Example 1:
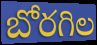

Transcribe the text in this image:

బోరగిల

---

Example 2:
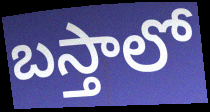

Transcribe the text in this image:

బస్తాలో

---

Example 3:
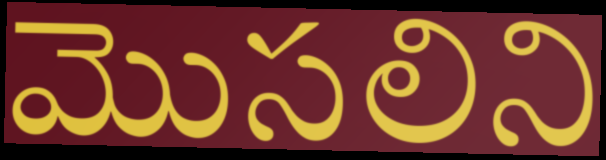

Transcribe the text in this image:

మొసలిని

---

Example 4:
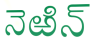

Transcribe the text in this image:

నెఱిన్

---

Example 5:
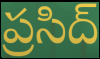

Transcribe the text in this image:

ప్రసిద్